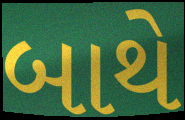
બાથે